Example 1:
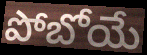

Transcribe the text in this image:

పోబోయే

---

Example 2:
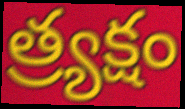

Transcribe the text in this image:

త్ర్యక్షం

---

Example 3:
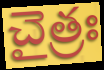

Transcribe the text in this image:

చైత్రః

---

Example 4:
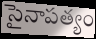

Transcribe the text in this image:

సైనాపత్యం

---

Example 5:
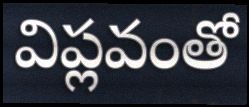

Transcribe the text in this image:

విప్లవంతో